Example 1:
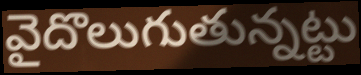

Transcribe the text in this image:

వైదొలుగుతున్నట్టు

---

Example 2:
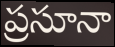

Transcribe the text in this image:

ప్రసూనా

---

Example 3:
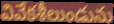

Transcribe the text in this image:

వివేకశీలుండును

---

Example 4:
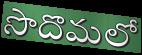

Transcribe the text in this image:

సొదొమలో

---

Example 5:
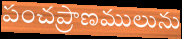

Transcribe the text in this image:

పంచప్రాణములును